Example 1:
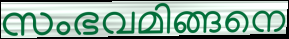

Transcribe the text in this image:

സംഭവമിങ്ങനെ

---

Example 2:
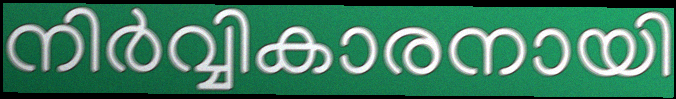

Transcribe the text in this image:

നിർവ്വികാരനായി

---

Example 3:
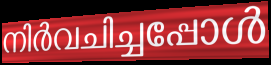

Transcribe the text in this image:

നിർവചിച്ചപ്പോൾ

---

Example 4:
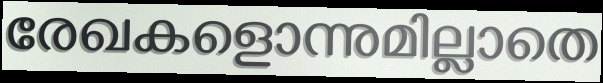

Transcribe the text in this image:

രേഖകളൊന്നുമില്ലാതെ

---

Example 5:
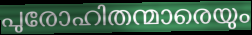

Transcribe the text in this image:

പുരോഹിതന്മാരെയും